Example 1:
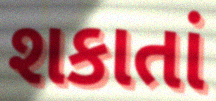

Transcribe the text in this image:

શકાતાં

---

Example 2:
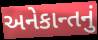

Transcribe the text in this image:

અનેકાન્તનું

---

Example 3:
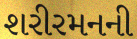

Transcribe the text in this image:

શરીરમનની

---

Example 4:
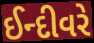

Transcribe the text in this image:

ઈન્દીવરે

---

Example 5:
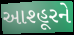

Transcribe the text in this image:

આશ્હૂરને